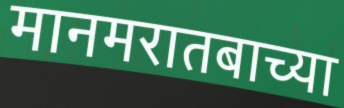
मानमरातबाच्या